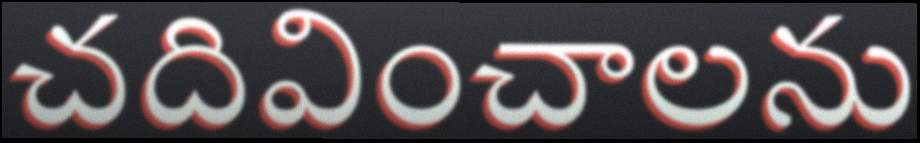
చదివించాలను